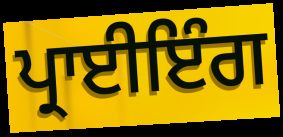
ਪ੍ਰਾਈਇੰਗ